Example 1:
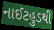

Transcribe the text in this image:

નાઈટહુડથી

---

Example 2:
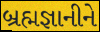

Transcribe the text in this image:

બ્રહ્મજ્ઞાનીને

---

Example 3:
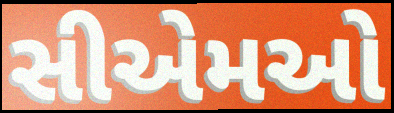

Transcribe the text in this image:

સીએમઓ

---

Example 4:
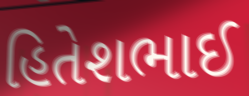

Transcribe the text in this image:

હિતેશભાઈ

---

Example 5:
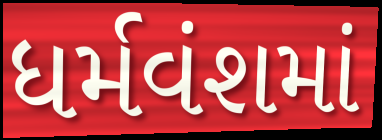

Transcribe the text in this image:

ધર્મવંશમાં